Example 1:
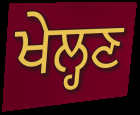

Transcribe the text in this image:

ਖੇਲ੍ਹਣ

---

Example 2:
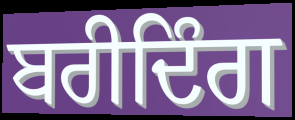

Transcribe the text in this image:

ਬਰੀਦਿੰਗ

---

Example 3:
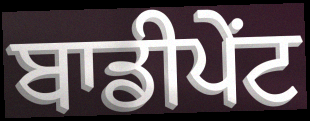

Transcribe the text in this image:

ਬਾਡੀਪੇਂਟ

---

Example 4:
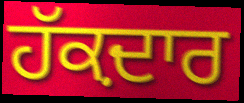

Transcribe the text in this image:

ਹੱਕ਼ਦਾਰ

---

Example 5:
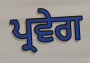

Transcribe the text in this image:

ਪ੍ਰਵੇਗ